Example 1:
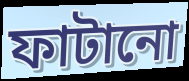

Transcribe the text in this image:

ফাটানো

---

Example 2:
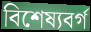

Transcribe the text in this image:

বিশেষ্যবর্গ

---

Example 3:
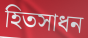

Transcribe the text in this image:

হিতসাধন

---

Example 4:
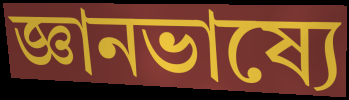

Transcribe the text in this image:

জ্ঞানভাষ্যে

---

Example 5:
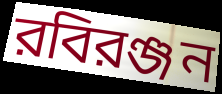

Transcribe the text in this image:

রবিরঞ্জন